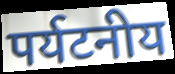
पर्यटनीय